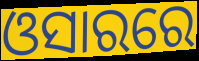
ଓସାରରେ